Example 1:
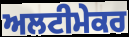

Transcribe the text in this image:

ਅਲਟੀਮੇਕਰ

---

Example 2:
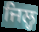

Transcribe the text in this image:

ਜਿਲ੍ਹ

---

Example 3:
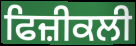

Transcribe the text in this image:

ਫਿਜ਼ੀਕਲੀ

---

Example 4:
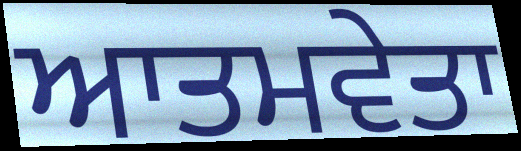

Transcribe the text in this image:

ਆਤਮਵੇਤਾ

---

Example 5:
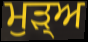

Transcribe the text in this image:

ਮੁਡ਼੍ਅ